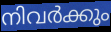
നിവർക്കും